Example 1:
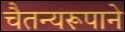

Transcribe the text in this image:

चैतन्यरूपाने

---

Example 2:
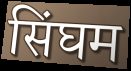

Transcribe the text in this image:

सिंघम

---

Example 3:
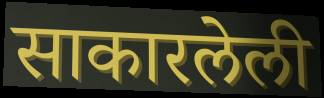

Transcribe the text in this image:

साकारलेली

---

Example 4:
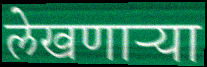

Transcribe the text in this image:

लेखणाऱ्या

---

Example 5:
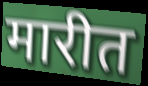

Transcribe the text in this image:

मारीत